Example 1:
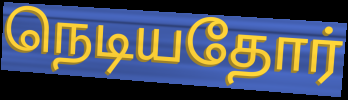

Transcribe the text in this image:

நெடியதோர்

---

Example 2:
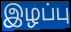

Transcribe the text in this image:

இழப்பு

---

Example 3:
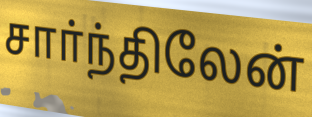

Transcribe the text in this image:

சார்ந்திலேன்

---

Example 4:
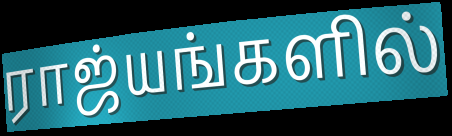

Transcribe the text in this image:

ராஜ்யங்களில்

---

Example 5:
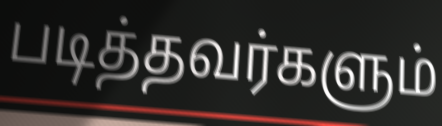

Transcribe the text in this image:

படித்தவர்களும்